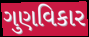
ગુણવિકાર